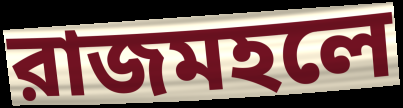
রাজমহলে